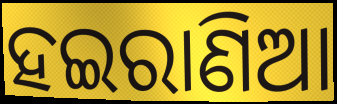
ହଇରାଣିଆ